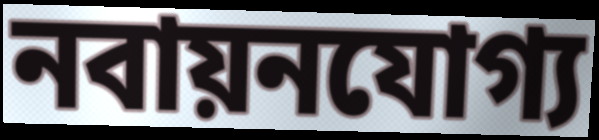
নবায়নযোগ্য